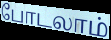
போடலாம்